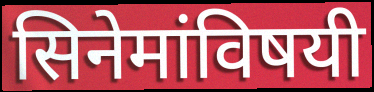
सिनेमांविषयी